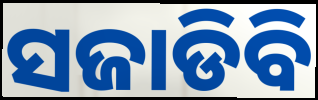
ସଜାଡିବି